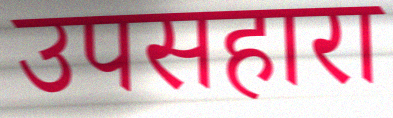
उपसहारा